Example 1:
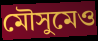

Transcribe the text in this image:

মৌসুমেও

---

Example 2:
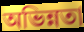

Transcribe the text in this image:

অভিন্নতা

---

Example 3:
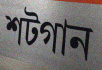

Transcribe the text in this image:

শটগান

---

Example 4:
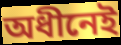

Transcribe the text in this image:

অধীনেই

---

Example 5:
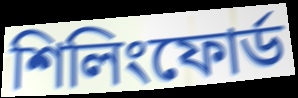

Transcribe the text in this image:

শিলিংফোর্ড